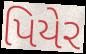
પિયેર